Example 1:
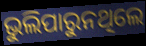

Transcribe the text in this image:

ଭୁଲିପାରୁନଥିଲେ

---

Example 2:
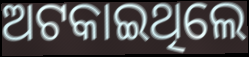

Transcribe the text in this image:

ଅଟକାଇଥିଲେ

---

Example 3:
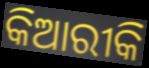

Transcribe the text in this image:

କିଆରୀକି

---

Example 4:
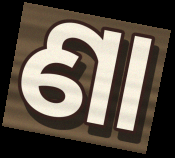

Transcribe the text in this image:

ଣା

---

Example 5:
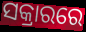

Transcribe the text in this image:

ସକ୍ରାରରେ